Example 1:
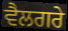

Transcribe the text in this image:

ਵੈਲਗਰੇ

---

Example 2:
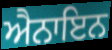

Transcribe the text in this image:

ਐਨਾਇਨ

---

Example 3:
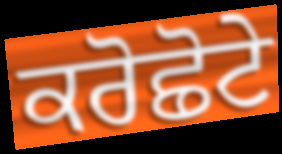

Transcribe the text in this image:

ਕਰੋਛੋਟੇ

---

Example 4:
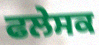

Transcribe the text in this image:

ਫਲੇਸਕ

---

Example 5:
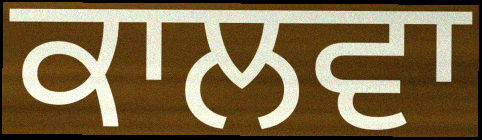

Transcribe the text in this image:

ਕਾਲਵਾ